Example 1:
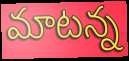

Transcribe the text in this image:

మాటన్న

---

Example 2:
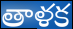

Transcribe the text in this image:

తాళక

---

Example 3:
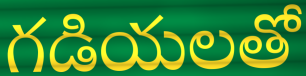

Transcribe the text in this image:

గడియలతో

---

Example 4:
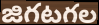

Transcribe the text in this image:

జిగటగల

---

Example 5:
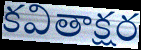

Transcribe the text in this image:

కవితాక్షర